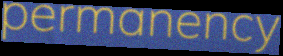
permanency